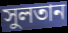
সুলতান